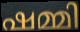
ഷമ്മി